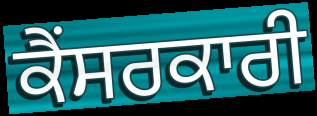
ਕੈਂਸਰਕਾਰੀ